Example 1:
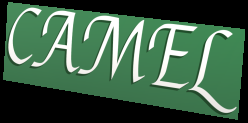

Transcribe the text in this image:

CAMEL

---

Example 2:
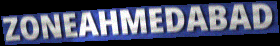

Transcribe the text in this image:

ZONEAHMEDABAD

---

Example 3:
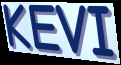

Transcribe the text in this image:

KEVI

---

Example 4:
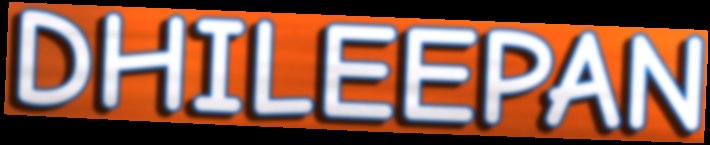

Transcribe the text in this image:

DHILEEPAN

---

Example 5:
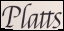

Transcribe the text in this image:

Platts